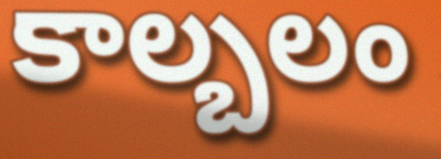
కాల్బలం